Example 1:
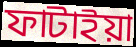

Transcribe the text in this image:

ফাটাইয়া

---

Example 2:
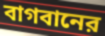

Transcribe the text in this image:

বাগবানের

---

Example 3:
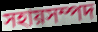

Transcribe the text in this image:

সহায়সম্পদ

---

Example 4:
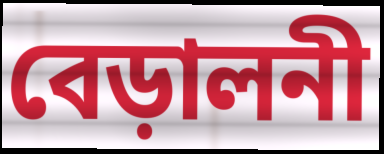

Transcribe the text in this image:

বেড়ালনী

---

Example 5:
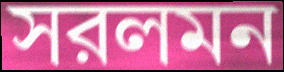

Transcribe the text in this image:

সরলমন